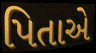
પિતાએ